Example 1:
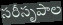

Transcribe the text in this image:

సరీసృపాల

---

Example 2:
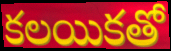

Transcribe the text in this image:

కలయికతో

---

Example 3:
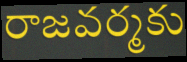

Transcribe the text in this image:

రాజవర్మకు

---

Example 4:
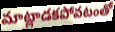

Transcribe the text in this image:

మాట్లాడకపోవటంతో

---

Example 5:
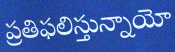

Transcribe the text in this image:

ప్రతిఫలిస్తున్నాయో